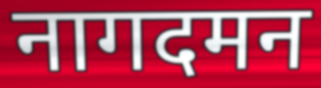
नागदमन